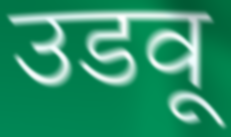
उडवू